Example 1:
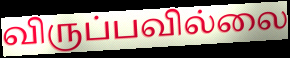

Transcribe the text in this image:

விருப்பவில்லை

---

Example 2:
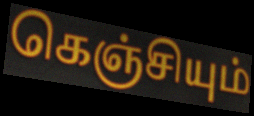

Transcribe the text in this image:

கெஞ்சியும்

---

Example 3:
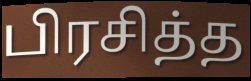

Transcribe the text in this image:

பிரசித்த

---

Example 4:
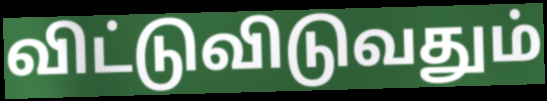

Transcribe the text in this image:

விட்டுவிடுவதும்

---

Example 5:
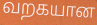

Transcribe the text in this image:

வறகயான